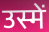
उस्में